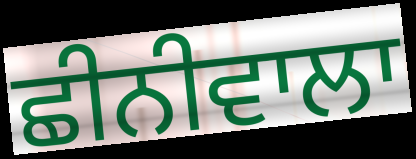
ਛੀਨੀਵਾਲਾ